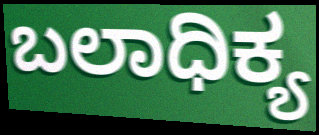
ಬಲಾಧಿಕ್ಯ